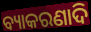
ବ୍ୟାକରଣାଦି